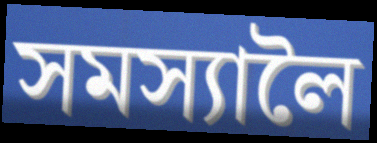
সমস্যালৈ